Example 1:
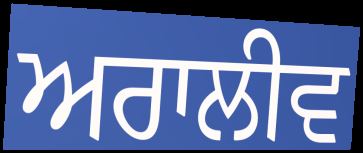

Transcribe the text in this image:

ਅਰਾਲੀਵ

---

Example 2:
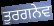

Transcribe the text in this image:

ਤੁਰਗਨੇਵ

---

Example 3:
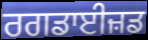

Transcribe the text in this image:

ਰਗਡਾਈਜ਼ਡ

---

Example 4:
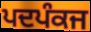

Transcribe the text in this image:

ਪਦਪੰਕਜ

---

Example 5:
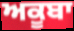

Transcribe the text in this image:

ਅਕੂਬਾ